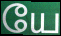
யே